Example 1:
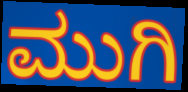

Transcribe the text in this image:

ಮುಗಿ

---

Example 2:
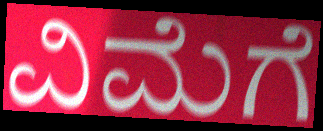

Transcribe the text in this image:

ವಿಮೆಗೆ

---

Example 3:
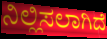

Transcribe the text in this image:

ನಿಲ್ಲಿಸಲಾಗಿದೆ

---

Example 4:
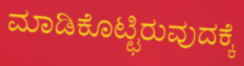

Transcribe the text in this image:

ಮಾಡಿಕೊಟ್ಟಿರುವುದಕ್ಕೆ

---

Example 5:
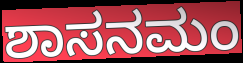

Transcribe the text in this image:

ಶಾಸನಮಂ